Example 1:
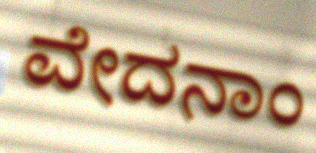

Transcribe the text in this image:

ವೇದನಾಂ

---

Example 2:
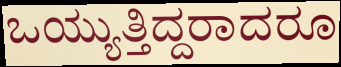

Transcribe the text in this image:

ಒಯ್ಯುತ್ತಿದ್ದರಾದರೂ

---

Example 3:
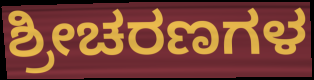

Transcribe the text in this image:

ಶ್ರೀಚರಣಗಳ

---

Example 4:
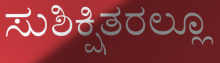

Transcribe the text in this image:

ಸುಶಿಕ್ಷಿತರಲ್ಲೂ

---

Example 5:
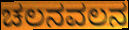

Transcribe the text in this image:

ಚಲನವಲನ